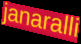
janaralli